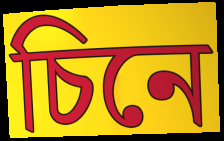
চিনে